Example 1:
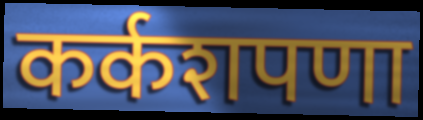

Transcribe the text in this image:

कर्कशपणा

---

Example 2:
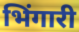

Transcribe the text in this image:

भिंगारी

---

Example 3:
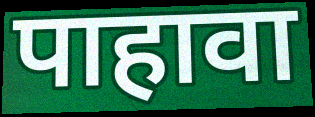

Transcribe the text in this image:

पाहावा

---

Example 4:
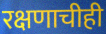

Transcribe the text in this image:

रक्षणाचीही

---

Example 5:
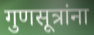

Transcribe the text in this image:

गुणसूत्रांना